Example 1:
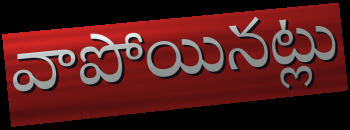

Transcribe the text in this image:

వాపోయినట్లు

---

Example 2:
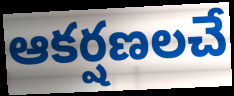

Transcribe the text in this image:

ఆకర్షణలచే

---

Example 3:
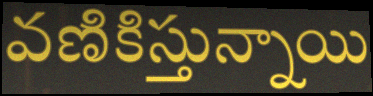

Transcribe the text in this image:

వణికిస్తున్నాయి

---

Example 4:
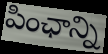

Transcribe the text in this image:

పింఛాన్ని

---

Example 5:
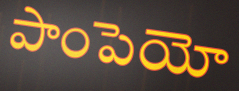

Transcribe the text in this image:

పాంపెయో